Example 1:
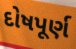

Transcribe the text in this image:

દોષપૂર્ણ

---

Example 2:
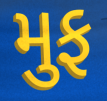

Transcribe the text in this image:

મુફ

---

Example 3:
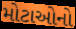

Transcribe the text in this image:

મોટાઓનો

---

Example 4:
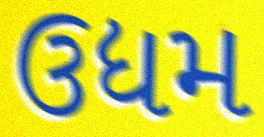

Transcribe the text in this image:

ઉદ્યમ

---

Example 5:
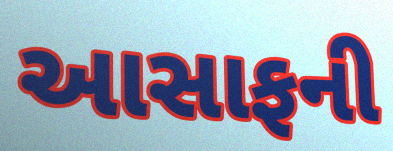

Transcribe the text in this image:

આસાફની